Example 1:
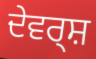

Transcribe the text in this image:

ਦੇਵਰ੍ਸ਼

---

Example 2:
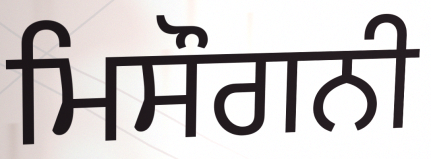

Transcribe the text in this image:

ਮਿਸੌਗਨੀ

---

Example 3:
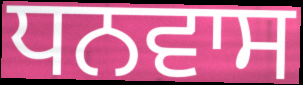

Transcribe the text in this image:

ਧਨਵਾਸ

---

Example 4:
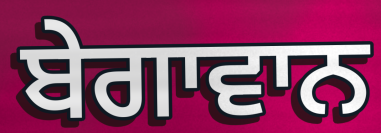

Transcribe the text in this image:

ਬੇਗਾਵਾਨ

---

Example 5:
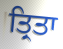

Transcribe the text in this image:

ਤ੍ਰਿਤਾ